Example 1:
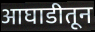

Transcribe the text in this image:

आघाडीतून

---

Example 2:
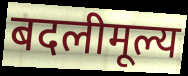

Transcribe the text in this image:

बदलीमूल्य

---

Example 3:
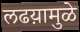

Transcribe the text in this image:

लढय़ामुळे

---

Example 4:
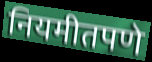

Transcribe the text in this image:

नियमीतपणे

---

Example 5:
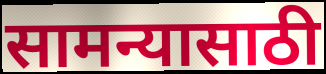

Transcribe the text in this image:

सामन्यासाठी